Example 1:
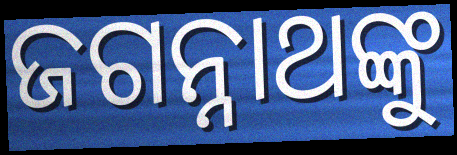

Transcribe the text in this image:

ଜଗନ୍ନାଥଙ୍କୁ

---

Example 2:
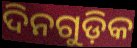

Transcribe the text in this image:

ଦିନଗୁଡ଼ିକ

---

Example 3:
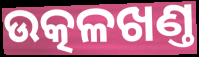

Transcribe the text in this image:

ଉତ୍କଳଖଣ୍ତ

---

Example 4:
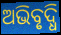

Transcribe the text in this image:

ଅଭିବୃଦ୍ଧି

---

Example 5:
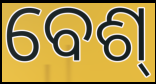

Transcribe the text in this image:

ବେଶ୍